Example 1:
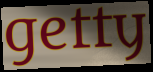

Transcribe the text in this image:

getty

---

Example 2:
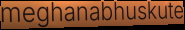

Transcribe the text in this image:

meghanabhuskute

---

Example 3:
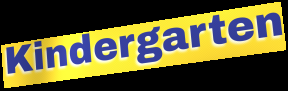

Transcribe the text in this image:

Kindergarten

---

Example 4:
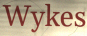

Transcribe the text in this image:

Wykes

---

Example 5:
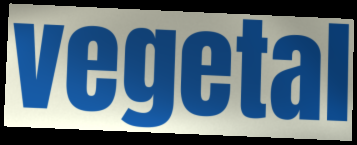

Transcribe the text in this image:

vegetal